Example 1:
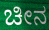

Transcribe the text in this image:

ಚೀನ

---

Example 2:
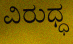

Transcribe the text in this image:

ವಿರುಧ್ಧ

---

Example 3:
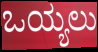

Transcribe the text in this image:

ಒಯ್ಯಲು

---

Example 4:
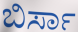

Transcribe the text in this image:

ಬಿರ್ಸಾ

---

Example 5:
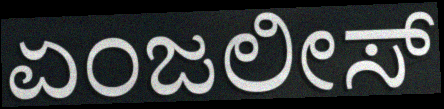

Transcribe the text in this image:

ಏಂಜಲೀಸ್